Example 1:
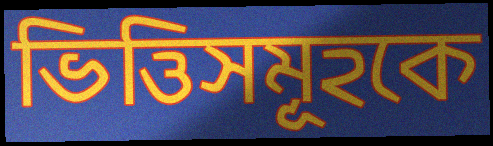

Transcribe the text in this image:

ভিত্তিসমূহকে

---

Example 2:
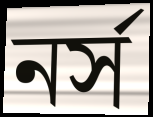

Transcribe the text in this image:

নর্স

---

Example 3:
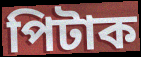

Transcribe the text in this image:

পিটাক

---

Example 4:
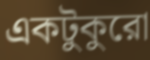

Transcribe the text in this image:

একটুকুরো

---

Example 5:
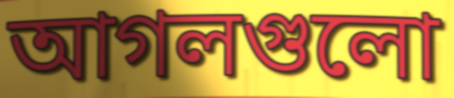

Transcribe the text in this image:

আগলগুলো